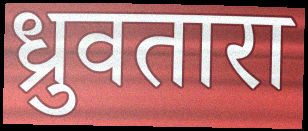
ध्रुवतारा